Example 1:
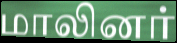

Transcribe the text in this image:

மாலினர்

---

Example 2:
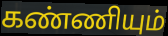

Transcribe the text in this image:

கண்ணியும்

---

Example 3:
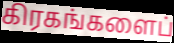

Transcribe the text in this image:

கிரகங்களைப்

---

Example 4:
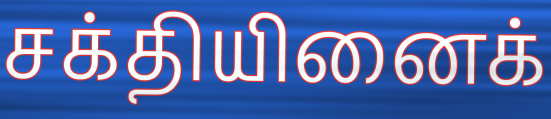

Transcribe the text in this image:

சக்தியினைக்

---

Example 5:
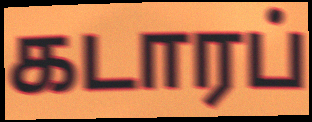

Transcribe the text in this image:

கடாரப்